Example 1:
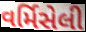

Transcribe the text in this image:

વર્મિસેલી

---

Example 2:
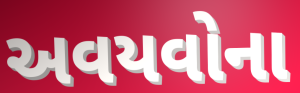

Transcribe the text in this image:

અવયવોના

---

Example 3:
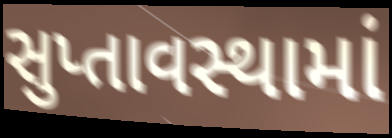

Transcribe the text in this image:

સુપ્તાવસ્થામાં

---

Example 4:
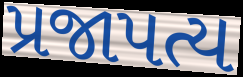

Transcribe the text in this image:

પ્રજાપત્ય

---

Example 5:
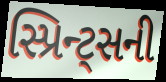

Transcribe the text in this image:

સ્પ્રિન્ટ્સની